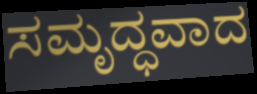
ಸಮೃದ್ಧವಾದ